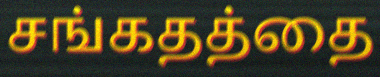
சங்கதத்தை